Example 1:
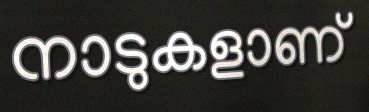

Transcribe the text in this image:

നാടുകളാണ്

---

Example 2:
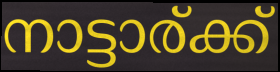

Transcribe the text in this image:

നാട്ടാര്ക്ക്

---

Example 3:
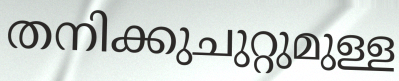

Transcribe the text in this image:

തനിക്കുചുറ്റുമുള്ള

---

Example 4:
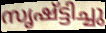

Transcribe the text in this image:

സൃഷ്ട്ടിച്ചു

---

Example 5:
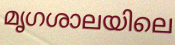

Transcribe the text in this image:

മൃഗശാലയിലെ